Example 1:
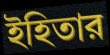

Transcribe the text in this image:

ইহিতার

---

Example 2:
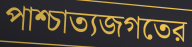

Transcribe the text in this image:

পাশ্চাত্যজগতের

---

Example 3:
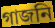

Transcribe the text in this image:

গাজনি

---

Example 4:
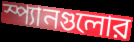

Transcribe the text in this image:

স্প্যানগুলোর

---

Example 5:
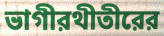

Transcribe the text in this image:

ভাগীরথীতীরের